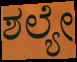
ಶಲ್ಯೇ